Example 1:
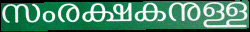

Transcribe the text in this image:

സംരക്ഷകനുള്ള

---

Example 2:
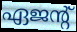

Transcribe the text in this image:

ഏജന്റ്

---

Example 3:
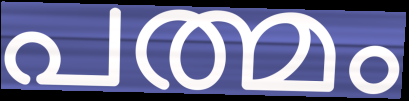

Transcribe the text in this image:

പത്മം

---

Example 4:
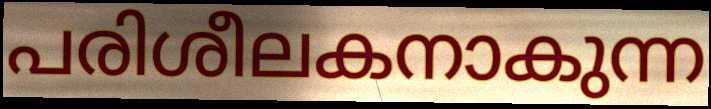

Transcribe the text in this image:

പരിശീലകനാകുന്ന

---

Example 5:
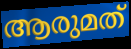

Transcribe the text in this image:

ആരുമത്